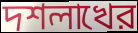
দশলাখের